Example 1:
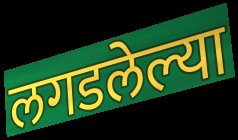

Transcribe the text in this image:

लगडलेल्या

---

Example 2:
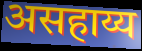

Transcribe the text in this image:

असहाय्य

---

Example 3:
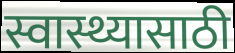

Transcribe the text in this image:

स्वास्थ्यासाठी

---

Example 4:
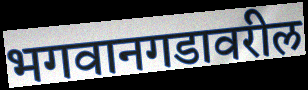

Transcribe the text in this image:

भगवानगडावरील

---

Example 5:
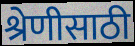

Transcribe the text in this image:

श्रेणीसाठी